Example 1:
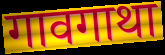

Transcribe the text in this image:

गावगाथा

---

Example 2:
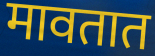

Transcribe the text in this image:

मावतात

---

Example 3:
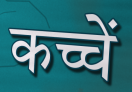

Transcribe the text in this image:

कच्चें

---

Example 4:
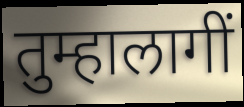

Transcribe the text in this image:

तुम्हालागीं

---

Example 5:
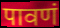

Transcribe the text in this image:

पावणं